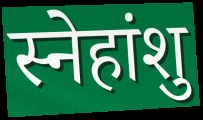
स्नेहांशु